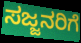
ಸಜ್ಜನರಿಗೆ